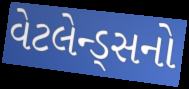
વેટલેન્ડ્સનો